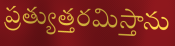
ప్రత్యుత్తరమిస్తాను